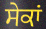
ਸੇਕਾਂ